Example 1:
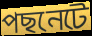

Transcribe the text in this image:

পছনেটে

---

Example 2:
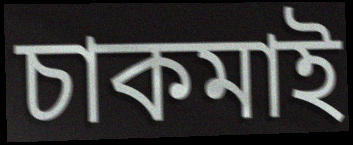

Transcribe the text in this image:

চাকমাই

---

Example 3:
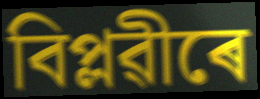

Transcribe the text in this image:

বিপ্লৱীৰে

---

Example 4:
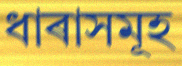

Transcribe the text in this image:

ধাৰাসমূহ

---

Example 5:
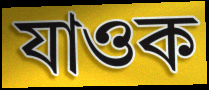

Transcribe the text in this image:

যাওক